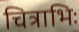
चित्राभिः